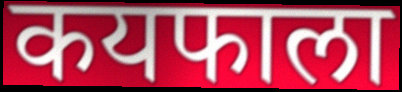
कयफाला